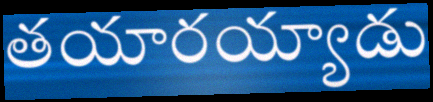
తయారయ్యాడు